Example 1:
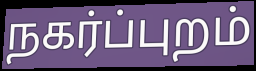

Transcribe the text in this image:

நகர்ப்புறம்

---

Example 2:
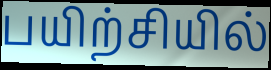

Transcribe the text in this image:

பயிற்சியில்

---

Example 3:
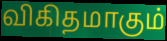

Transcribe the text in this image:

விகிதமாகும்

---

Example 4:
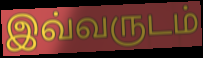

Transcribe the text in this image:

இவ்வருடம்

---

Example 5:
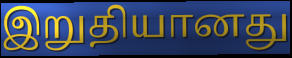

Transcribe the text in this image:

இறுதியானது